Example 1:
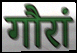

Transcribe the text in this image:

गौरां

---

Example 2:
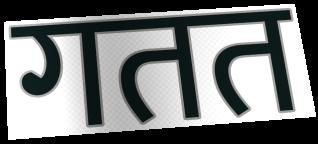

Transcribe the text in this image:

गतत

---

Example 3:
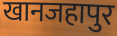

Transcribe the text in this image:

खानजहापुर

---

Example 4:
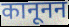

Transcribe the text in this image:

कानूनन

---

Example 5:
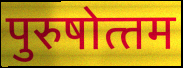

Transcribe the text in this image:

पुरुषोत्‍तम